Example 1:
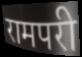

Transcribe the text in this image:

रामपरी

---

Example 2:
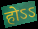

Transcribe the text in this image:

होऽऽ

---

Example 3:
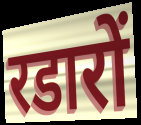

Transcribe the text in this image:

रडारों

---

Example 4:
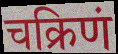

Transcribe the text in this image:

चक्रिणं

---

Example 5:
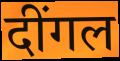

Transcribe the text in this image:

दींगल